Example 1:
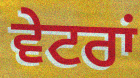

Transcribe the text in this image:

ਵੇਟਰਾਂ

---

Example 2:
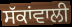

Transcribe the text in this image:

ਸੱਕਾਂਵਾਲੀ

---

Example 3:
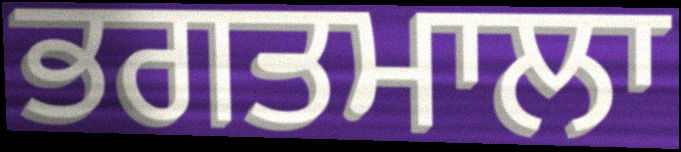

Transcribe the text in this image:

ਭਗਤਮਾਲਾ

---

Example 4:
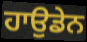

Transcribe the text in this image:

ਹਾਉਡੇਨ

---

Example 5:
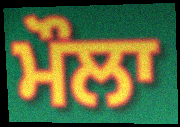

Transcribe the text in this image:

ਮੌਲਾ